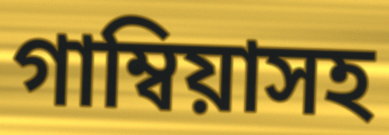
গাম্বিয়াসহ